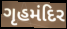
ગૃહમંદિર